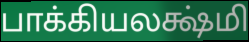
பாக்கியலக்ஷ்மி